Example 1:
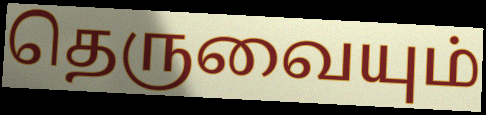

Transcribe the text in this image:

தெருவையும்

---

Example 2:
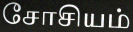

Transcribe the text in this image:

சோசியம்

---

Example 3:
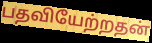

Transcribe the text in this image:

பதவியேற்றதன்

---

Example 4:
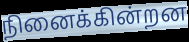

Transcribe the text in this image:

நினைக்கின்றன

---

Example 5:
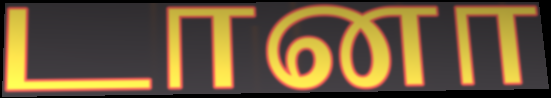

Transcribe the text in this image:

டானா